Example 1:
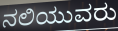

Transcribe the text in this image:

ನಲಿಯುವರು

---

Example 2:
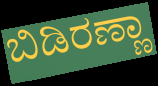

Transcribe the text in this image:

ಬಿಡಿರಣ್ಣಾ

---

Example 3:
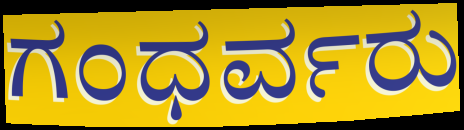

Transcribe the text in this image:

ಗಂಧರ್ವರು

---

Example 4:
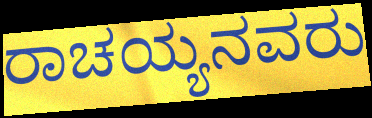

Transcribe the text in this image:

ರಾಚಯ್ಯನವರು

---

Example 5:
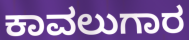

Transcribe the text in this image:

ಕಾವಲುಗಾರ